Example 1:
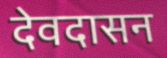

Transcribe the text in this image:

देवदासन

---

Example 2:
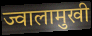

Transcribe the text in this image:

ज्‍वालामुखी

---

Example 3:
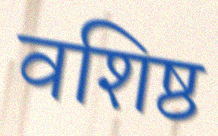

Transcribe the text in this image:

वशिष्ठ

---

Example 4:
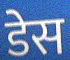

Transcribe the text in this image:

डेस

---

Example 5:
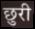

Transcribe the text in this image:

छुरी